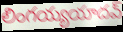
లింగయ్యయాదవ్